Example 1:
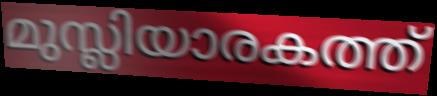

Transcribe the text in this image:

മുസ്ലിയാരകത്ത്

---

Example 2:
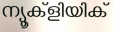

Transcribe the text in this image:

ന്യൂക്ളിയിക്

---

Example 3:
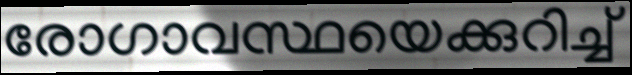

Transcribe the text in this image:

രോഗാവസ്ഥയെക്കുറിച്ച്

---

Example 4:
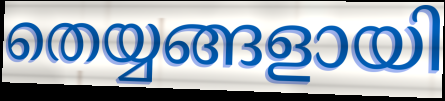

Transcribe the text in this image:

തെയ്യങ്ങളായി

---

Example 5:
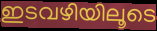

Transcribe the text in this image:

ഇടവഴിയിലൂടെ